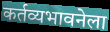
कर्तव्यभावनेला